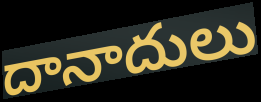
దానాదులు